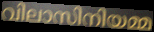
വിലാസിനിയമ്മ